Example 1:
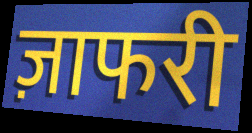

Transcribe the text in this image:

ज़ाफरी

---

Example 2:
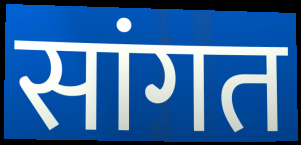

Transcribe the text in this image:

सांगत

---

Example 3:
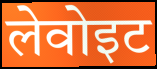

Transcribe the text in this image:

लेवोइट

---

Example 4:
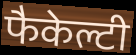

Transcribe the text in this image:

फैकेल्टी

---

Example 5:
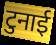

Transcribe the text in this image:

टुनाई